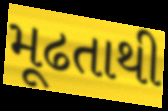
મૂઢતાથી